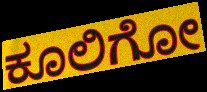
ಕೂಲಿಗೋ